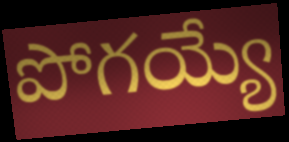
పోగయ్యే